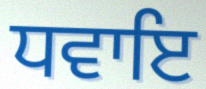
ਧਵਾਇ